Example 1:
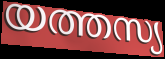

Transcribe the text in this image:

യത്തസ്യ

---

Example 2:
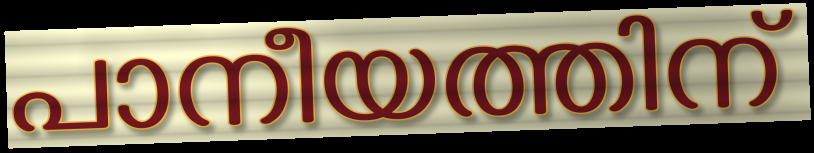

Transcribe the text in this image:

പാനീയത്തിന്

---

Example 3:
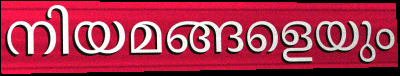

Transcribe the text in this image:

നിയമങ്ങളെയും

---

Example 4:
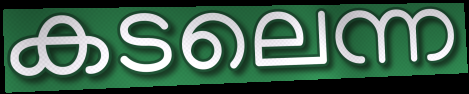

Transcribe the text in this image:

കടലെന്ന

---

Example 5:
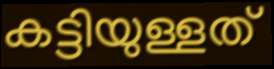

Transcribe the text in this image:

കട്ടിയുള്ളത്